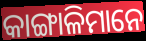
କାଙ୍ଗାଳିମାନେ